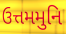
ઉત્તમમુનિ